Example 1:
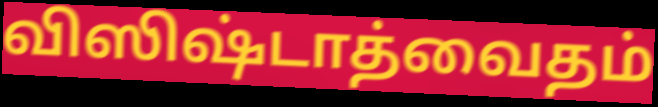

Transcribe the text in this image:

விஸிஷ்டாத்வைதம்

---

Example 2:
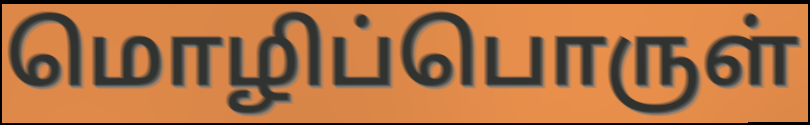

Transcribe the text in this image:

மொழிப்பொருள்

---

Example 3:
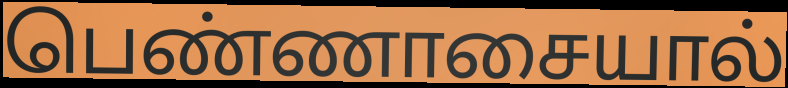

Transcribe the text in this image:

பெண்ணாசையால்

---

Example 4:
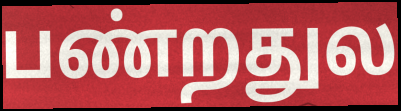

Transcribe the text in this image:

பண்றதுல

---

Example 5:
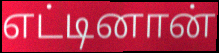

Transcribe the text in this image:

எட்டினான்